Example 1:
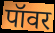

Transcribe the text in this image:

पॉवर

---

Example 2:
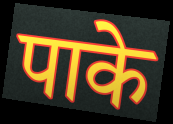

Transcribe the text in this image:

पाके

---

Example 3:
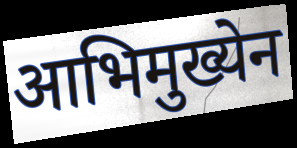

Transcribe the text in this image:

आभिमुख्येन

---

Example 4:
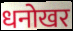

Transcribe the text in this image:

धनोखर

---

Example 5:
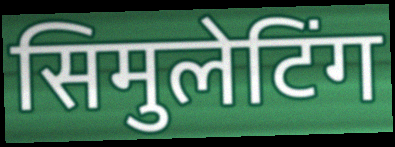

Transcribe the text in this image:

सिमुलेटिंग